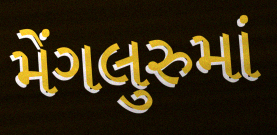
મેંગલુરુમાં